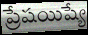
ప్రేషయిష్యే